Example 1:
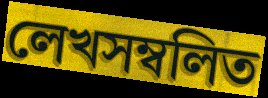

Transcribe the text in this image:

লেখসম্বলিত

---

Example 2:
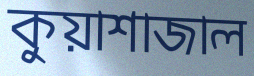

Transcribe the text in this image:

কুয়াশাজাল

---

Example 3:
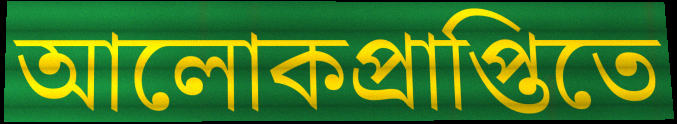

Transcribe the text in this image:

আলোকপ্রাপ্তিতে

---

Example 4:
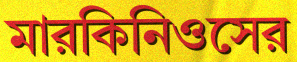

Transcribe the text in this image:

মারকিনিওসের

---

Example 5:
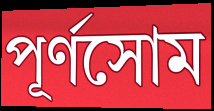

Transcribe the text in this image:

পূর্ণসোম